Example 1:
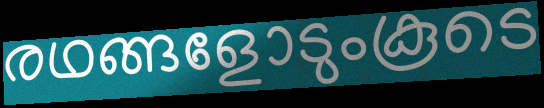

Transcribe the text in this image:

രഥങ്ങളോടുംകൂടെ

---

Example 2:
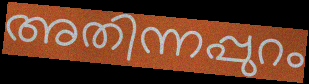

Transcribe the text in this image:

അതിന്നപ്പുറം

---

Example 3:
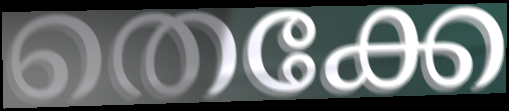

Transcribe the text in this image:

തെക്കേ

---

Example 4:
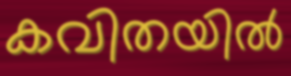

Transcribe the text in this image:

കവിതയിൽ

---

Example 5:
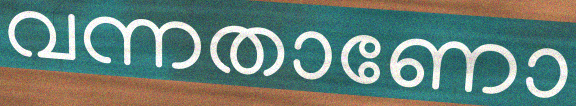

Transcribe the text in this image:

വന്നതാണോ